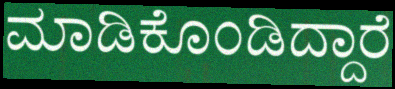
ಮಾಡಿಕೊಂಡಿದ್ದಾರೆ